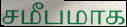
சமீபமாக